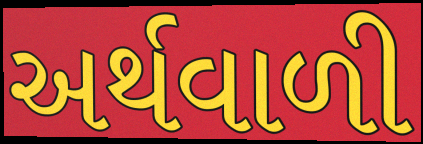
અર્થવાળી